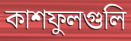
কাশফুলগুলি